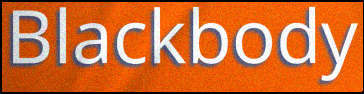
Blackbody